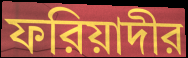
ফরিয়াদীর